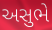
અસુભે